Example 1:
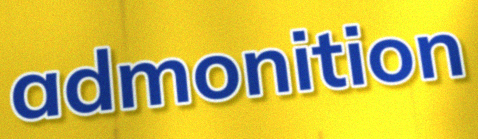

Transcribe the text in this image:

admonition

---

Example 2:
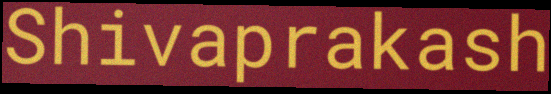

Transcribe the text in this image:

Shivaprakash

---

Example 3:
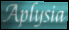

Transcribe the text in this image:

Aplysia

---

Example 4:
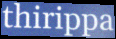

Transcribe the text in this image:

thirippa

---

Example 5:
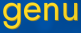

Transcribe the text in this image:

genu